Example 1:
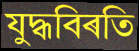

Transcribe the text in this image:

যুদ্ধবিৰতি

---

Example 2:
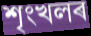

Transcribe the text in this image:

শৃংখলৰ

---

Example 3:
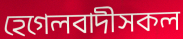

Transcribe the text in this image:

হেগেলবাদীসকল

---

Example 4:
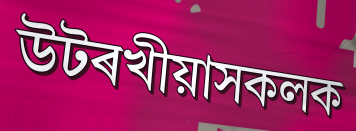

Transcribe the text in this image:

উটৰখীয়াসকলক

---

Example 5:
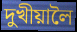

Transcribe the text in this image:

দুখীয়ালৈ